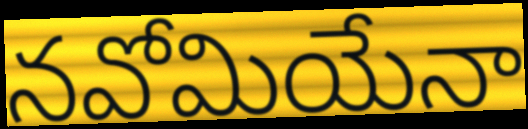
నవోమియేనా